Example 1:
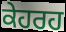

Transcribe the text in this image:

ਕੇਹਰਹ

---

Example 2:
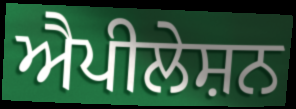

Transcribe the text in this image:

ਐਪੀਲੇਸ਼ਨ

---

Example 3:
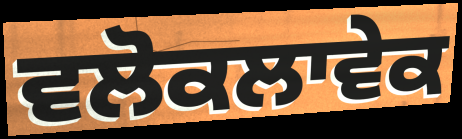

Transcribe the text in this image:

ਵਲੋਕਲਾਵੇਕ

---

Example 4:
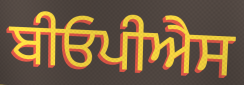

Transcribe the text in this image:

ਬੀਓਪੀਐਸ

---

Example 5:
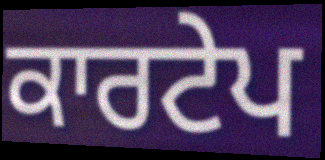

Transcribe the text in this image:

ਕਾਰਟੇਪ